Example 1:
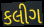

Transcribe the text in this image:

કલીગ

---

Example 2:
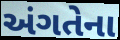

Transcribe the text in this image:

અંગતેના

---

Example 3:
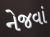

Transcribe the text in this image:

નેજવાં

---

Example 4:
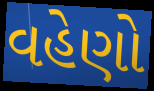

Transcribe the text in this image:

વહેણો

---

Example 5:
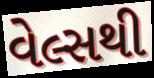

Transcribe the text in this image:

વેલ્સથી